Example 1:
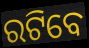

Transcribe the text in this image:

ରଟିବେ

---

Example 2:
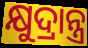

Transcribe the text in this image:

କ୍ଷୁଦ୍ରାନ୍ତ୍ର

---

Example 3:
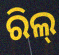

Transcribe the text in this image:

ରିଲ୍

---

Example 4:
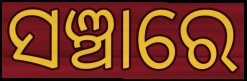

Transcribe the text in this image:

ସଞ୍ଚାରେ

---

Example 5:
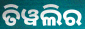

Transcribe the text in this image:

ତିୱଲିର